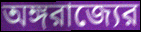
অঙ্গরাজ্যের